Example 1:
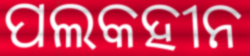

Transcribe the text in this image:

ପଲକହୀନ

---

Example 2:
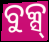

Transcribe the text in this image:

ବୁକ୍ସ୍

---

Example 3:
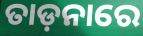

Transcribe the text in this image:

ତାଡ଼ନାରେ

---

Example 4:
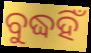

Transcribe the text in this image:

ବୁଦ୍ଧହିଁ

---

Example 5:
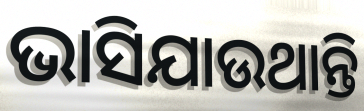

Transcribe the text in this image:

ଭାସିଯାଉଥାନ୍ତି